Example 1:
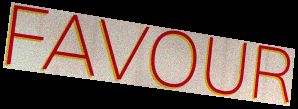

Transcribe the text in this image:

FAVOUR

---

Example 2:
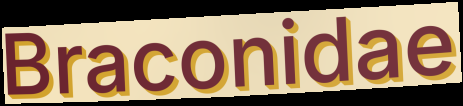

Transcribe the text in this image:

Braconidae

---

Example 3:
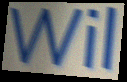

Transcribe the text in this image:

Wil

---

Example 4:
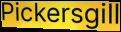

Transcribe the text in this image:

Pickersgill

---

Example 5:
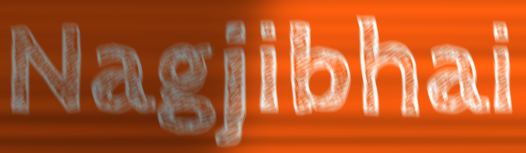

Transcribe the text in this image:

Nagjibhai